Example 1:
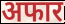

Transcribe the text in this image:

अफार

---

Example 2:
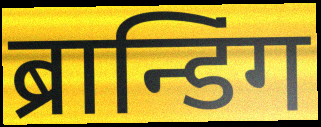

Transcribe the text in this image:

ब्रान्डिंग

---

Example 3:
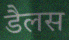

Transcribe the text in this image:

डैलस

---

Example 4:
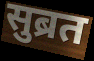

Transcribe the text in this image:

सुब्रत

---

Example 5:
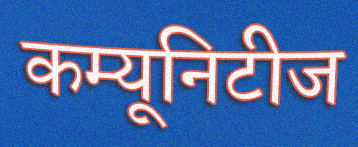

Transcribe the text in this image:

कम्यूनिटीज